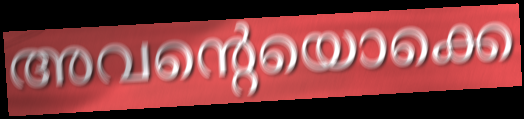
അവന്റെയൊക്കെ